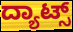
ದ್ಯಾಟ್ಸ್